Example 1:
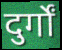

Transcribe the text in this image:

दुर्गों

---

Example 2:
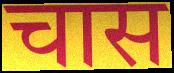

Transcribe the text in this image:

चास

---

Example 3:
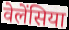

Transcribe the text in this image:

वेलेंसिया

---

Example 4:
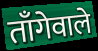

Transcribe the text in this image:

ताँगेवाले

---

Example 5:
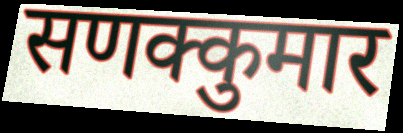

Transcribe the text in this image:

सणक्कुमार